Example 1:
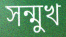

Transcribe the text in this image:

সন্মুখ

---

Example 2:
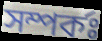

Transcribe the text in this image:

সম্পৰ্কঃ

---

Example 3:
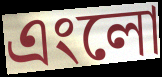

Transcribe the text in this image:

এংলো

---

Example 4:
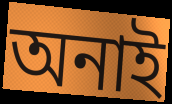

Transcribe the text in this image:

অনাই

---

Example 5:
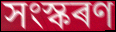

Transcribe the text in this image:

সংস্কৰণ